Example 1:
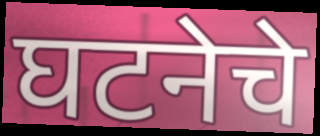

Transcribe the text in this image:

घटनेचे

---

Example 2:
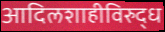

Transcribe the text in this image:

आदिलशाहीविरुद्ध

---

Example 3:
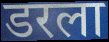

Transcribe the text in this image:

डरला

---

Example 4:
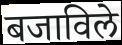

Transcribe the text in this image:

बजाविले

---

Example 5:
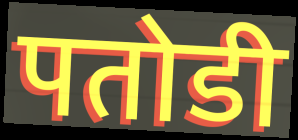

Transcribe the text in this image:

पतोडी